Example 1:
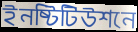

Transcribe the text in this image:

ইনষ্টিটিউশনে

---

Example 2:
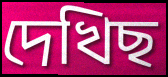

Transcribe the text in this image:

দেখিছ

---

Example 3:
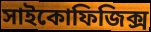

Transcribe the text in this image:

সাইকোফিজিক্স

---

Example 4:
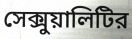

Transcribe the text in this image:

সেক্সুয়ালিটির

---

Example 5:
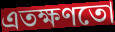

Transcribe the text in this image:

এতক্ষণতো